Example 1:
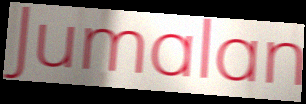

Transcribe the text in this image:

Jumalan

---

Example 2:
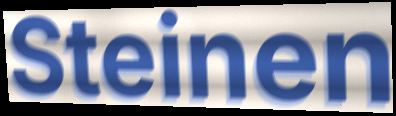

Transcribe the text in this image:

Steinen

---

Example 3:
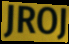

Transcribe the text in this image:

JROJ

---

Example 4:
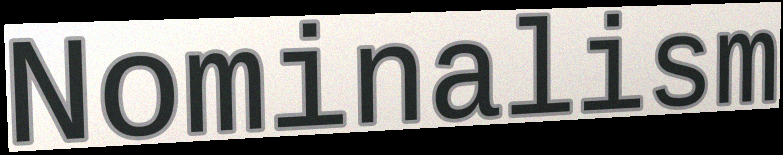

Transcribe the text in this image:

Nominalism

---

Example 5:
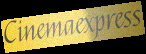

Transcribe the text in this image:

Cinemaexpress